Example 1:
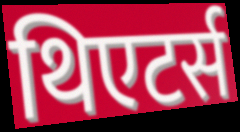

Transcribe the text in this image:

थिएटर्स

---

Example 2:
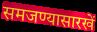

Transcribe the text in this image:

समजण्यासारखें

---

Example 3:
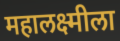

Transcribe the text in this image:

महालक्ष्मीला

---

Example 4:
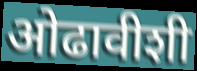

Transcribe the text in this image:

ओढावीशी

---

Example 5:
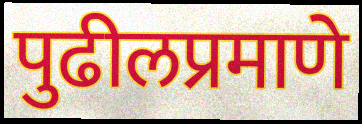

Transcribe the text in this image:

पुढीलप्रमाणे